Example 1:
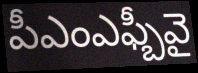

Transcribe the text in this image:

పీఎంఎఫ్బీవై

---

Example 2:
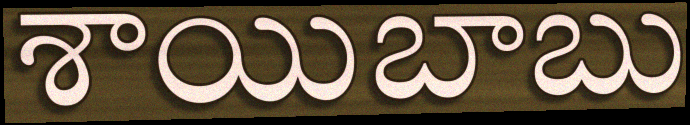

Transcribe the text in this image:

శాయిబాబు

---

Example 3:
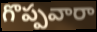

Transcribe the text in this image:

గొప్పవారా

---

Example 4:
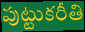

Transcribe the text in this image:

పుట్టుకరీతి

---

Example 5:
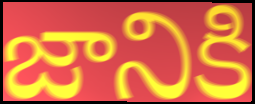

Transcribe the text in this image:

జానికి